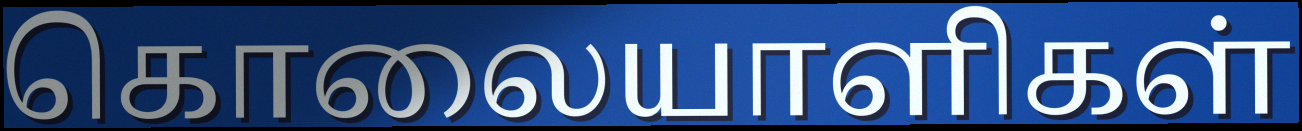
கொலையாளிகள்